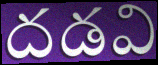
దడవి